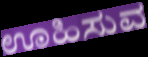
ಊಹಿಸುವ